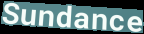
Sundance